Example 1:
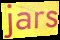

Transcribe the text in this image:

jars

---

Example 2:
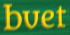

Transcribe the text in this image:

buet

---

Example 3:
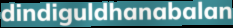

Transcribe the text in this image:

dindiguldhanabalan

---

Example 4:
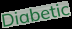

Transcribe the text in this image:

Diabetic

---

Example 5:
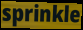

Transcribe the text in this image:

sprinkle